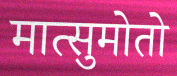
मात्सुमोतो